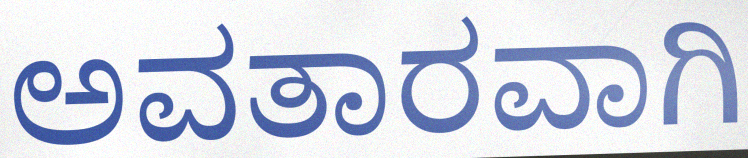
ಅವತಾರವಾಗಿ